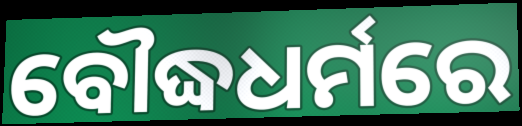
ବୌଦ୍ଧଧର୍ମରେ